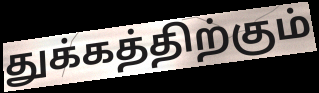
துக்கத்திற்கும்